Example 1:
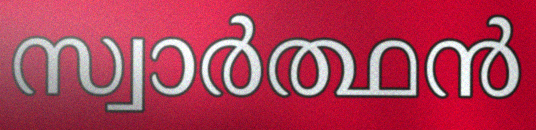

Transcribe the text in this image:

സ്വാർത്ഥൻ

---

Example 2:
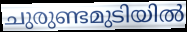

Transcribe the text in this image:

ചുരുണ്ടമുടിയിൽ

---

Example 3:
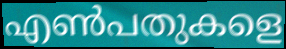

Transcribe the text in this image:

എൺപതുകളെ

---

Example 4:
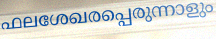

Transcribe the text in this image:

ഫലശേഖരപ്പെരുന്നാളും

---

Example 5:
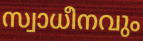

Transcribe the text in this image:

സ്വാധീനവും